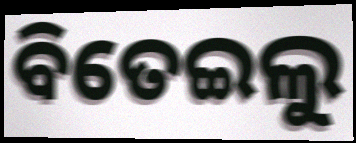
ବିତେଇଲୁ